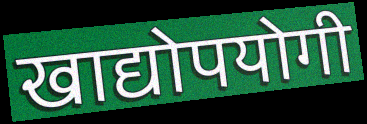
खाद्योपयोगी